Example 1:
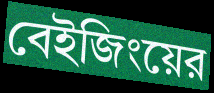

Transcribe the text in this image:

বেইজিংয়ের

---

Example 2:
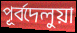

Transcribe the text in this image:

পূর্বদেলুয়া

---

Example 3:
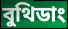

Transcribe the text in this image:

বুথিডাং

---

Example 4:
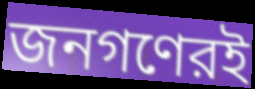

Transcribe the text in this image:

জনগণেরই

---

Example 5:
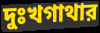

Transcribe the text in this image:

দুঃখগাথার